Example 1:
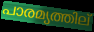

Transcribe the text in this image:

പാരമ്യത്തില്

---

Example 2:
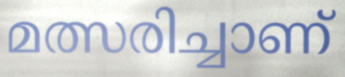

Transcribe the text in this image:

മത്സരിച്ചാണ്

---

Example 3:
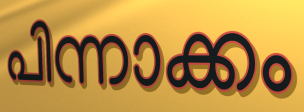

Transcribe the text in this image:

പിന്നാക്കം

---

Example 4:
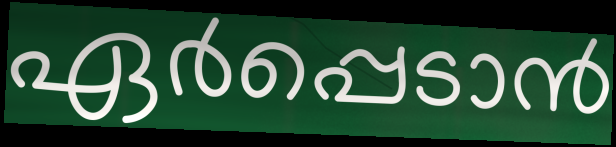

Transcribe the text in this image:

ഏർപ്പെടാൻ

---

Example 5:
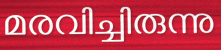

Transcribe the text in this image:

മരവിച്ചിരുന്നു